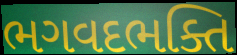
ભગવદભક્તિ